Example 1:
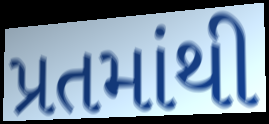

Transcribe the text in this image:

પ્રતમાંથી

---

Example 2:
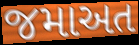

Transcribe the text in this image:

જમાઅત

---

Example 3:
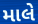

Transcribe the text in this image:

માલે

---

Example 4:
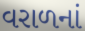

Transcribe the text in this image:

વરાળનાં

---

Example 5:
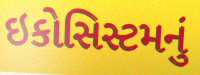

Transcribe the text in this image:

ઇકોસિસ્ટમનું